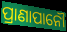
ପ୍ରାଣାପାନୌ